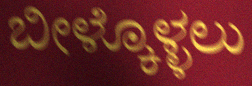
ಬೀಳ್ಕೊಳ್ಳಲು